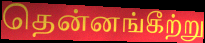
தென்னங்கீற்று